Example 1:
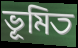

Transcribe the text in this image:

ভূমিত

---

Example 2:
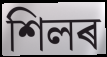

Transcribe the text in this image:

শিলৰ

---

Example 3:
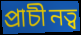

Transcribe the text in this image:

প্ৰাচীনত্ব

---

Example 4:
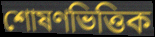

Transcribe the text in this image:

শোষণভিত্তিক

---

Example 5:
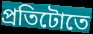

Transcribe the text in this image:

প্ৰতিটোতে